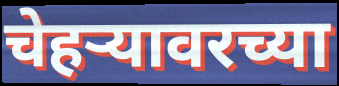
चेहर्‍यावरच्या